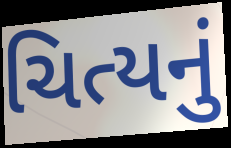
ચિત્યનું